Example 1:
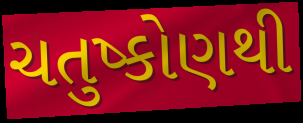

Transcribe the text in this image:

ચતુષ્કોણથી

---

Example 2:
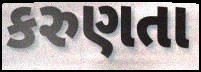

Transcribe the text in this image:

કરુણતા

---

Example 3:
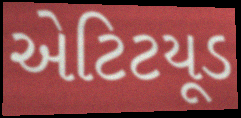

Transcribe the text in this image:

એટિટયૂડ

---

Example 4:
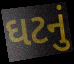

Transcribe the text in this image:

ઘટનું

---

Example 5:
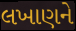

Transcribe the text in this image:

લખાણને